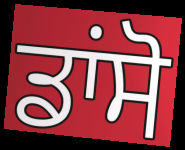
ਡਾਂਸੋ